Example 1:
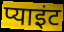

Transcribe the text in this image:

प्याइंट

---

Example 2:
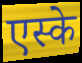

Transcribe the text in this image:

एस्के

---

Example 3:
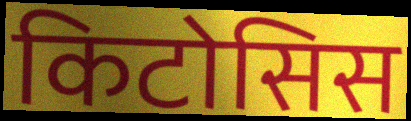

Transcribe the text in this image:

किटोसिस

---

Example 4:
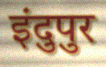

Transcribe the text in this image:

इंदुपुर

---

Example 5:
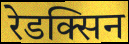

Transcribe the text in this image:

रेडक्सिन